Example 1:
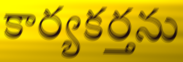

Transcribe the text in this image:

కార్యకర్తను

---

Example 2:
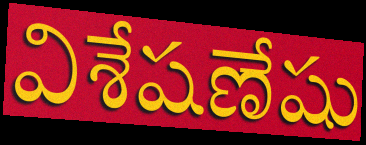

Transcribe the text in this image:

విశేషణేషు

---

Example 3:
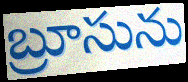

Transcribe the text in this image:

బ్రూసును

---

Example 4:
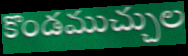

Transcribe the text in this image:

కొండముచ్చుల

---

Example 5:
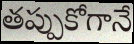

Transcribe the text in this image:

తప్పుకోగానే